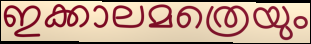
ഇക്കാലമത്രെയും